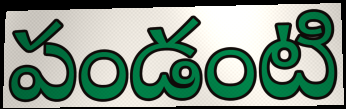
పండంటి